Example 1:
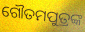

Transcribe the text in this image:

ଗୌତମପୁତ୍ରଙ୍କ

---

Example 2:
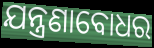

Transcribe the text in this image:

ଯନ୍ତ୍ରଣାବୋଧର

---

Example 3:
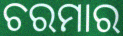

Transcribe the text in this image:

ଚରମାର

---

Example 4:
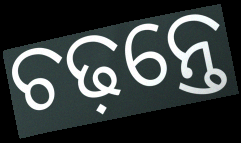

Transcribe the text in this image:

ଚଢ଼ନ୍ତେ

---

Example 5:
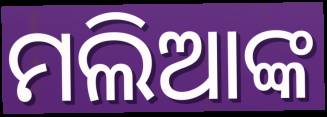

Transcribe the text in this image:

ମଲିଆଙ୍କ